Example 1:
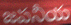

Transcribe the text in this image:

జపనీయ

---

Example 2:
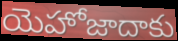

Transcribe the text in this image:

యెహోజాదాకు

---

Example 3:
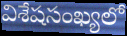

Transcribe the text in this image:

విశేషసంఖ్యలో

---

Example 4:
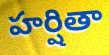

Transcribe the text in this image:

హర్షితా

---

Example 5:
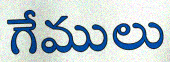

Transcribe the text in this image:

గేములు